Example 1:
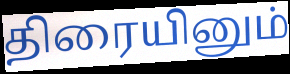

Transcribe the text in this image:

திரையினும்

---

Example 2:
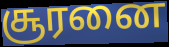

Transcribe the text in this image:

சூரனை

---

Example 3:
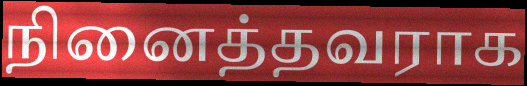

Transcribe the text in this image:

நினைத்தவராக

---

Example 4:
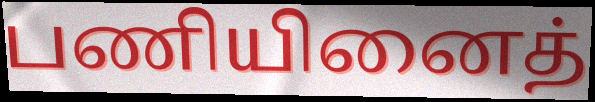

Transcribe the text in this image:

பணியினைத்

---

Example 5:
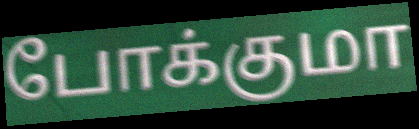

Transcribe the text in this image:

போக்குமா